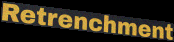
Retrenchment